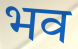
भव